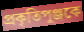
প্রকৃতিপুঞ্জকে